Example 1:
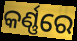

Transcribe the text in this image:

କର୍ଣ୍ଣରେ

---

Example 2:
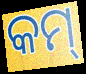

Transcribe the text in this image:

କମ୍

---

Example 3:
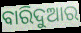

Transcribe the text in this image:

ବାରିଦୁଆର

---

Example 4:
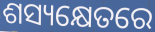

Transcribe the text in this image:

ଶସ୍ୟକ୍ଷେତରେ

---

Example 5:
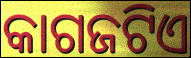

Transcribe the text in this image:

କାଗଜଟିଏ